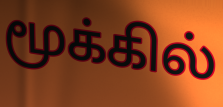
மூக்கில்